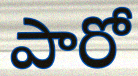
పారో